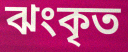
ঝংকৃত